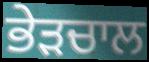
ਭੇੜਚਾਲ